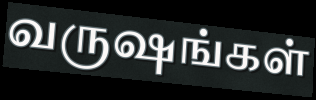
வருஷங்கள்